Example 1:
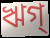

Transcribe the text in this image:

ঋগ্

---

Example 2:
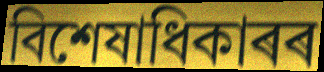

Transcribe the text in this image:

বিশেষাধিকাৰৰ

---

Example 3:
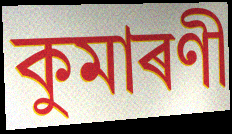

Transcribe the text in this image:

কুমাৰণী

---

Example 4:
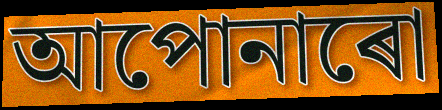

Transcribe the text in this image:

আপোনাৰো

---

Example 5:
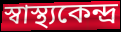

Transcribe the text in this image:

স্বাস্থ্যকেন্দ্ৰ